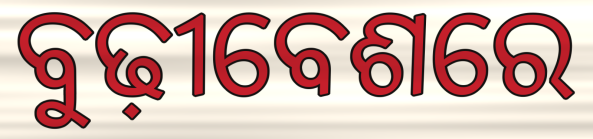
ବୁଢ଼ୀବେଶରେ